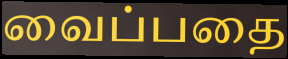
வைப்பதை